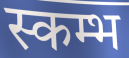
स्कम्भ